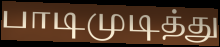
பாடிமுடித்து